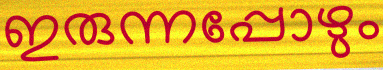
ഇരുന്നപ്പോഴും